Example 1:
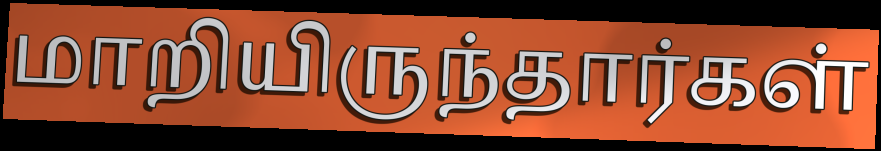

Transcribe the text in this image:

மாறியிருந்தார்கள்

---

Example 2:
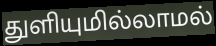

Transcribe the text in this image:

துளியுமில்லாமல்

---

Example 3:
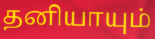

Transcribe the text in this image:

தனியாயும்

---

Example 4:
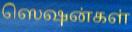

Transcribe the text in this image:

ஸெஷன்கள்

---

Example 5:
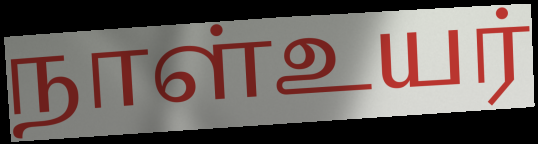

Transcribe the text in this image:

நாள்உயர்